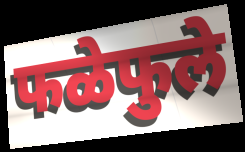
फळेफुले